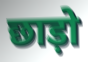
छाड़ो